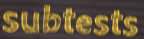
subtests